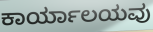
ಕಾರ್ಯಾಲಯವು